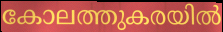
കോലത്തുകരയിൽ